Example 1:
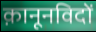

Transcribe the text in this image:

क़ानूनविदों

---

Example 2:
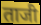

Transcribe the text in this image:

ताजी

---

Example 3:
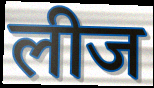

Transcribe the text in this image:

लीज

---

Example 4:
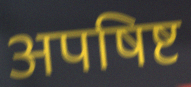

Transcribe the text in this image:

अपषिष्ट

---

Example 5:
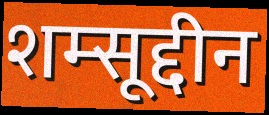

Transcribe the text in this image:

शम्सूद्दीन